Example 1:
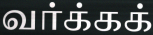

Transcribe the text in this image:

வர்க்கக்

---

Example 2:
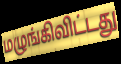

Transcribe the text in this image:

மழுங்கிவிட்டது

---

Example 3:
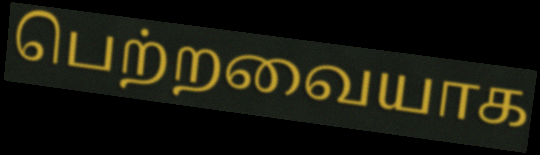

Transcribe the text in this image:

பெற்றவையாக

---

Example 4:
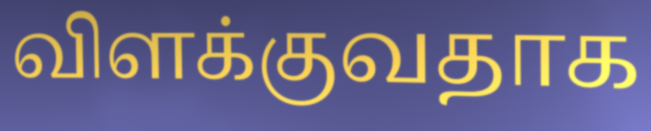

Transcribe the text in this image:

விளக்குவதாக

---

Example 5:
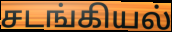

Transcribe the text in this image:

சடங்கியல்